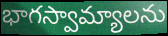
భాగస్వామ్యాలను